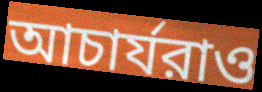
আচার্যরাও